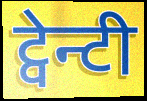
ट्वेन्टी